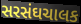
સરસંઘચાલક